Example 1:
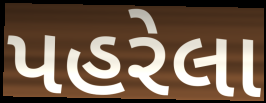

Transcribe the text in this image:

પહરેલા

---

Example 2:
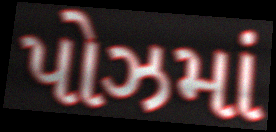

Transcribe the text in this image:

પોઝમાં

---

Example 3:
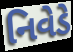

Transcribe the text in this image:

નિવેડે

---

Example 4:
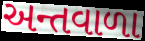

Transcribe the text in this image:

અન્તવાળા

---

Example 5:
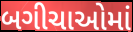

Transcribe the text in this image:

બગીચાઓમાં